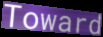
Toward